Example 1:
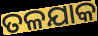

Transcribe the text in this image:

ତଳଯାକ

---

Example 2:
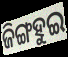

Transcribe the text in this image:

ଜିଙ୍ଗହୁଇ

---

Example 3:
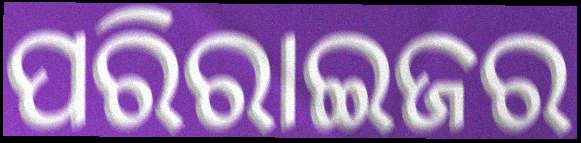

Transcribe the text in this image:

ପରିରାଇଜର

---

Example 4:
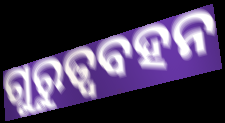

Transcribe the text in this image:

ଗୁରୁତ୍ୱବହନ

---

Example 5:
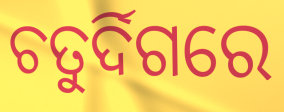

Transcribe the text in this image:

ଚତୁର୍ଦିଗରେ